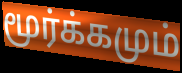
மூர்க்கமும்